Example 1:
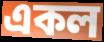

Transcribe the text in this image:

একল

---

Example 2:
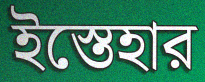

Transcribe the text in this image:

ইস্তেহার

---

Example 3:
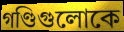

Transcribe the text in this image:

গণ্ডিগুলোকে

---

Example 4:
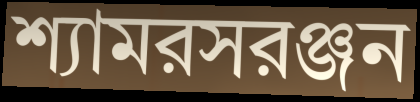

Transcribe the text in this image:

শ্যামরসরঞ্জন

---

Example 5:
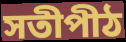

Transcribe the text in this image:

সতীপীঠ